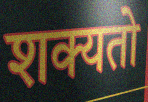
शक्‍यतो